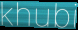
khubi